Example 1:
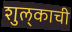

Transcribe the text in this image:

शुल्काची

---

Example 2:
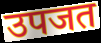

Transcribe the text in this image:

उपजत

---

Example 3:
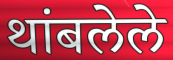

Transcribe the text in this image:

थांबलेले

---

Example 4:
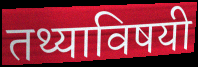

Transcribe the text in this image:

तथ्याविषयी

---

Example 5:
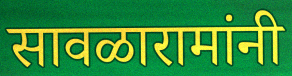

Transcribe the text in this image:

सावळारामांनी